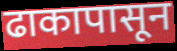
ढाकापासून